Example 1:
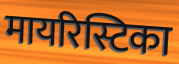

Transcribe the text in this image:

मायरिस्टिका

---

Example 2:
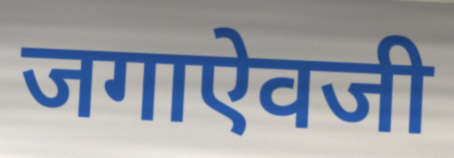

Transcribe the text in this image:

जगाऐवजी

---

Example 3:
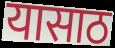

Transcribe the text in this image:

यासाठ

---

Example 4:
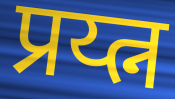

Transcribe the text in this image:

प्रय्त्न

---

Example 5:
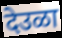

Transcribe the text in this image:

देउळा